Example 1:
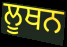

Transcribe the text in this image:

ਲੂਥਨ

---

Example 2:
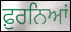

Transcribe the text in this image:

ਫ਼ੁਰਨਿਆਂ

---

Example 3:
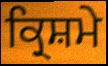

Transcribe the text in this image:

ਕ੍ਰਿਸ਼ਮੇ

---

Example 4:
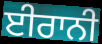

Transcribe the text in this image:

ਈਰਾਨੀ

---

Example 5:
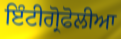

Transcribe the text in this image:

ਇੰਟੀਗ੍ਰੋਫੋਲੀਆ